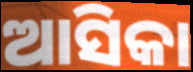
ଆସିକା